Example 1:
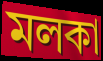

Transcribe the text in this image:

মলকা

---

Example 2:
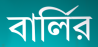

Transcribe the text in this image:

বার্লির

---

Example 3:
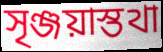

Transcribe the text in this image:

সৃঞ্জয়াস্তথা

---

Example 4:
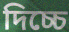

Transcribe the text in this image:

দিচ্চে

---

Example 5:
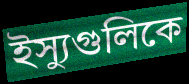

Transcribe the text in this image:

ইস্যুগুলিকে